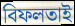
বিফলতাই